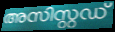
അസിസ്റ്റഡ്